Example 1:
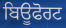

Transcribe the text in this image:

ਬਿਊਫੋਰਟ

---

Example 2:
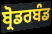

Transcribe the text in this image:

ਬ੍ਰੋਡਰਬੰਡ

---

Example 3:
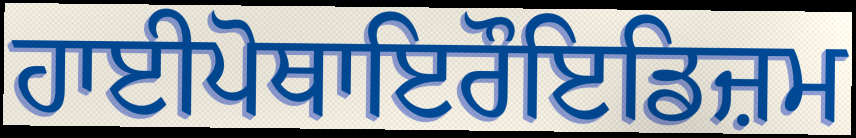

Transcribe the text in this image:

ਹਾਈਪੋਥਾਇਰੌਇਡਿਜ਼ਮ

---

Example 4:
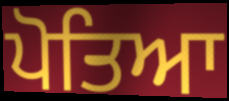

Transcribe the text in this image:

ਪੋਤਿਆ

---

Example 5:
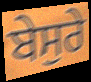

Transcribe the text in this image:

ਬੇਸੁਰੇ